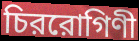
চিররোগিণী